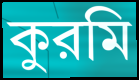
কুরমি